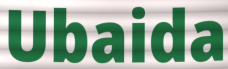
Ubaida